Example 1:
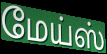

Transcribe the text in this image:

மேய்ஸ்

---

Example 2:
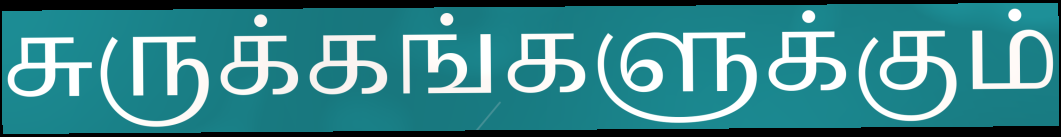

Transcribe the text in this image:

சுருக்கங்களுக்கும்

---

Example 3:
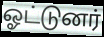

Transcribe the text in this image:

ஓட்டுனர்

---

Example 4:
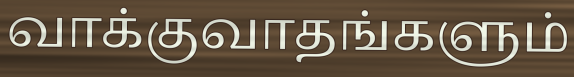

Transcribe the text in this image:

வாக்குவாதங்களும்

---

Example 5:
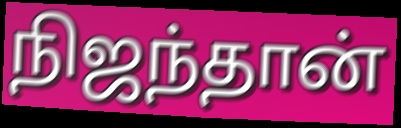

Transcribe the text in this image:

நிஜந்தான்